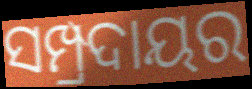
ସମ୍ପ୍ରଦାୟର